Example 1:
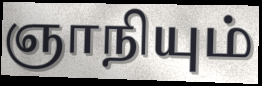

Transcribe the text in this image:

ஞாநியும்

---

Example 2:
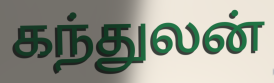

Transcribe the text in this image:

கந்துலன்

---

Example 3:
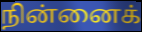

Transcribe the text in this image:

நின்னைக்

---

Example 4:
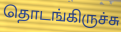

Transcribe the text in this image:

தொடங்கிருச்சு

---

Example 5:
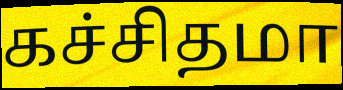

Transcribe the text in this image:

கச்சிதமா